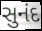
સુનંદ